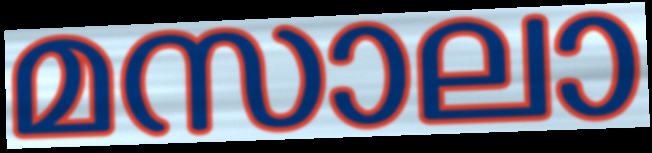
മസാലാ